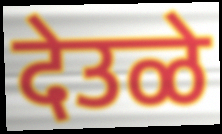
देउळे